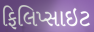
ફિલિપ્સાઇટ